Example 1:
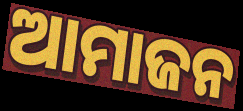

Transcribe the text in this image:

ଆମାଜନ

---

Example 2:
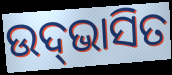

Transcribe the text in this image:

ଉଦ୍‍ଭାସିତ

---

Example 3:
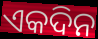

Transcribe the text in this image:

ଏକଦିନ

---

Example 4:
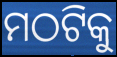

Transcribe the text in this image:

ମଠଟିକୁ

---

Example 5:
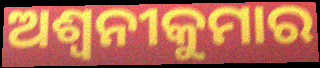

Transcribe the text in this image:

ଅଶ୍ୱନୀକୁମାର